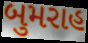
બુમરાહ